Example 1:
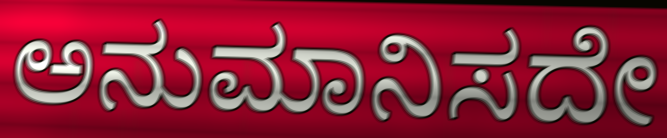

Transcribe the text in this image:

ಅನುಮಾನಿಸದೇ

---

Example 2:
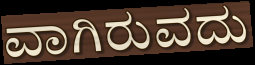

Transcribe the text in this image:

ವಾಗಿರುವದು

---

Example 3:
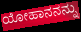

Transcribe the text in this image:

ಯೋಹಾನನನ್ನು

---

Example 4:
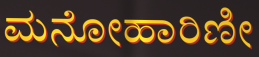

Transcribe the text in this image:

ಮನೋಹಾರಿಣೀ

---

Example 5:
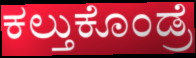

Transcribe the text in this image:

ಕಲ್ತುಕೊಂಡ್ರೆ